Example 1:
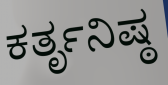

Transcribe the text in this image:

ಕರ್ತೃನಿಷ್ಠ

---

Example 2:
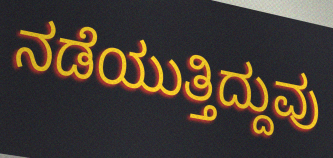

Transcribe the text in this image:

ನಡೆಯುತ್ತಿದ್ದುವು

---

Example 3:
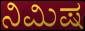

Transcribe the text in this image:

ನಿಮಿಷ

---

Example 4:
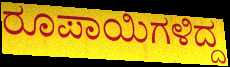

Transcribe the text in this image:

ರೂಪಾಯಿಗಳಿದ್ದ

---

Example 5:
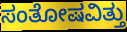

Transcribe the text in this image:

ಸಂತೋಷವಿತ್ತು